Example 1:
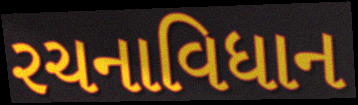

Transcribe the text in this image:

રચનાવિધાન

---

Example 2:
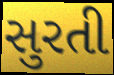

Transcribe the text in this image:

સુરતી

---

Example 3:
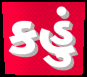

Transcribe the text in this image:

કહું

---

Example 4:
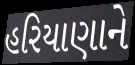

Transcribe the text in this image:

હરિયાણાને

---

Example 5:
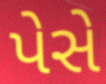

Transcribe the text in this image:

પેસે